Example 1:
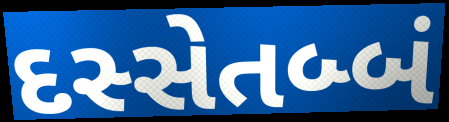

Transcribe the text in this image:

દસ્સેતબ્બં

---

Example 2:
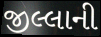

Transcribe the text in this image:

જીલ્લાની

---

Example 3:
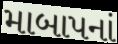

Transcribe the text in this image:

માબાપનાં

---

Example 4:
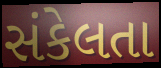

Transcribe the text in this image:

સંકેલતા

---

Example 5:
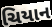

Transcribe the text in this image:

ચિયાન